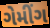
ગેમીંગ